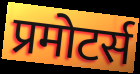
प्रमोटर्स